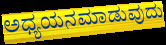
ಅಧ್ಯಯನಮಾಡುವುದು